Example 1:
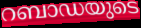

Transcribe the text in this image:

റബാഡയുടെ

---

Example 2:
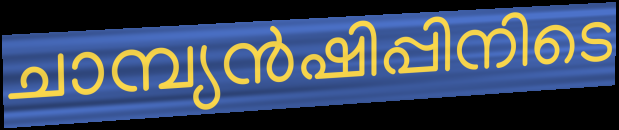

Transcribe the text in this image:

ചാമ്പ്യൻഷിപ്പിനിടെ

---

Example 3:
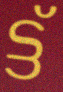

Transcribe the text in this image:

ട്ട്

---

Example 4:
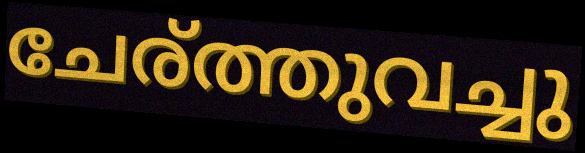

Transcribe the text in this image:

ചേര്ത്തുവച്ചു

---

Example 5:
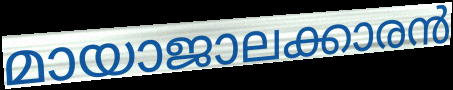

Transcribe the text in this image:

മായാജാലക്കാരൻ